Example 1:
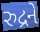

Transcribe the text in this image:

રુદ્રને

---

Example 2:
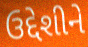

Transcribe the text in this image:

ઉદ્દેશીને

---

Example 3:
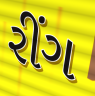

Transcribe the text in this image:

રીંગ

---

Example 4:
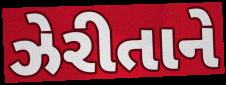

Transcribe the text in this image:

ઝેરીતાને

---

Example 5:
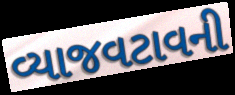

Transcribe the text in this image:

વ્યાજવટાવની